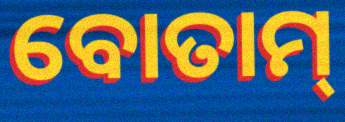
ବୋତାମ୍